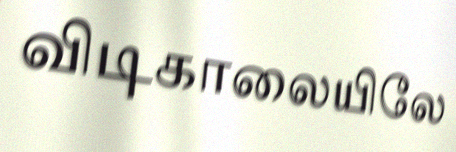
விடிகாலையிலே